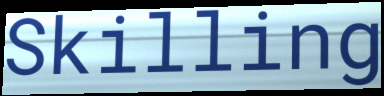
Skilling